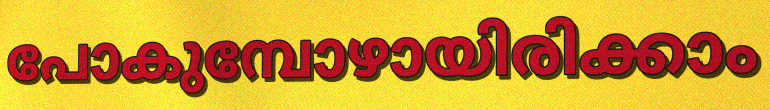
പോകുമ്പോഴായിരിക്കാം